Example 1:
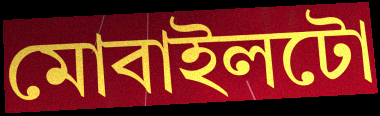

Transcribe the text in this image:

মোবাইলটো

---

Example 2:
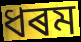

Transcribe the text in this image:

ধৰম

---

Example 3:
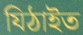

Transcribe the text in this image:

যিঠাইত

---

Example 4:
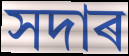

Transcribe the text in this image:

সদাৰ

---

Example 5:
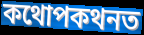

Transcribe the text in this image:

কথোপকথনত